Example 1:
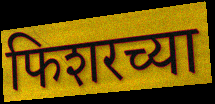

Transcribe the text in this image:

फिशरच्या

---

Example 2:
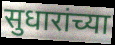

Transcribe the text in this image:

सुधारांच्या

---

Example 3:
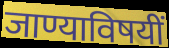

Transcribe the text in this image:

जाण्याविषयीं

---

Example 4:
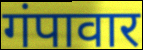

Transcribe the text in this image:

गंपावार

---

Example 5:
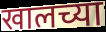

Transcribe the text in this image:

खालच्या